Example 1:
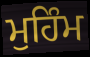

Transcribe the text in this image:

ਮੁਹਿੰਮ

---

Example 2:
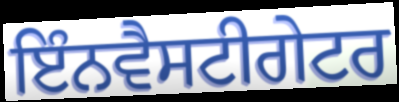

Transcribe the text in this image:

ਇੰਨਵੈਸਟੀਗੇਟਰ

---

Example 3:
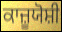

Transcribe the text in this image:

ਕਾਜ਼ੂਯੋਸ਼ੀ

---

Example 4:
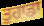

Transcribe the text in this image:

ਤੁਹਾਡਾ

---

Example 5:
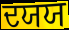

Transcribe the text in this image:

ਦਯਯ